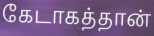
கேடாகத்தான்